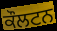
ਕੌਲਟਨ